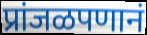
प्रांजळपणानं